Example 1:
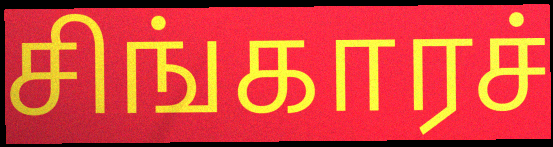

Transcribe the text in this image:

சிங்காரச்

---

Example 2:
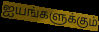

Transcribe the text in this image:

ஐயங்களுக்கும்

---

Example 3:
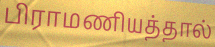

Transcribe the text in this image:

பிராமணியத்தால்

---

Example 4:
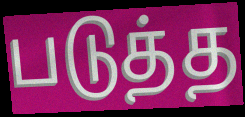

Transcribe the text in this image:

படுத்த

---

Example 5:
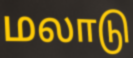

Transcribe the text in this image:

மலாடு